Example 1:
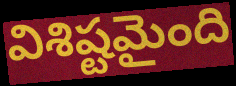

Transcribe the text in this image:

విశిష్టమైంది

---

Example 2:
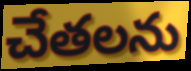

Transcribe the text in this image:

చేతలను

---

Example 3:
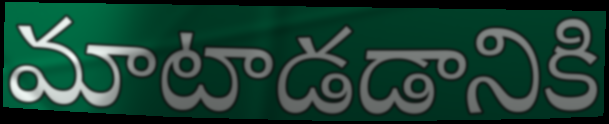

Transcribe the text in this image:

మాటాడడానికి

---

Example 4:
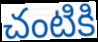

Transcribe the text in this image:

చంటికి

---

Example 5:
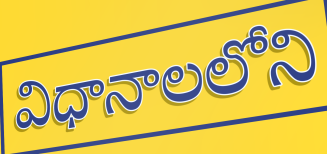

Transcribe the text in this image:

విధానాలలోని